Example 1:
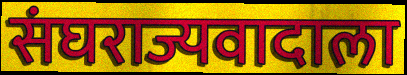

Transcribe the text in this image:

संघराज्यवादाला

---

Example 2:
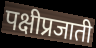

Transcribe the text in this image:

पक्षीप्रजाती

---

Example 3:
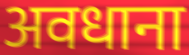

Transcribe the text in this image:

अवधाना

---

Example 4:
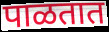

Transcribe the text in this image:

पाळतात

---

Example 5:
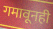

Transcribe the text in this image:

गमावूनही